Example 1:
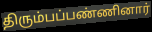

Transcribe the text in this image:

திரும்பப்பண்ணினார்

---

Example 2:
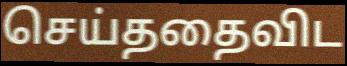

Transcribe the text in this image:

செய்ததைவிட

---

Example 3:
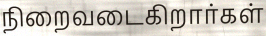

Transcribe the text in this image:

நிறைவடைகிறார்கள்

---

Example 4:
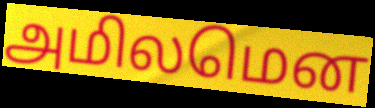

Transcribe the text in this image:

அமிலமென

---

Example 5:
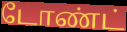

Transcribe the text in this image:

டோண்ட்